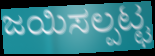
ಜಯಿಸಲ್ಪಟ್ಟ